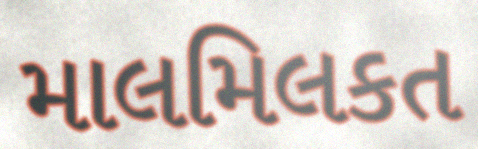
માલમિલકત